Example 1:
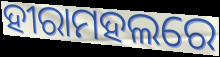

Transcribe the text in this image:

ହୀରାମହଲରେ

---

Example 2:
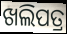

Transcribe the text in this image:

ଖଲିପତ୍ର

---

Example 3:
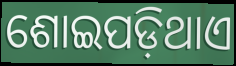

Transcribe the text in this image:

ଶୋଇପଡ଼ିଥାଏ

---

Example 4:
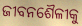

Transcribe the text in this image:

ଜୀବନଶୈଳୀକୁ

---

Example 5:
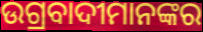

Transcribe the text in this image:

ଉଗ୍ରବାଦୀମାନଙ୍କର